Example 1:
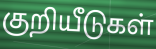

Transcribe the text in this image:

குறியீடுகள்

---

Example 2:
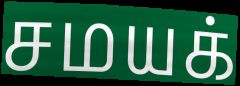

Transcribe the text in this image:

சமயக்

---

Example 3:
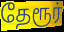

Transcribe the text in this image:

தேரூர்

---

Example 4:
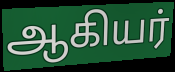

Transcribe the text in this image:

ஆகியர்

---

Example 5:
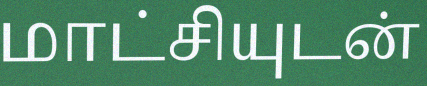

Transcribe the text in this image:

மாட்சியுடன்